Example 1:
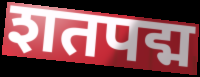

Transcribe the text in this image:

शतपद्म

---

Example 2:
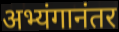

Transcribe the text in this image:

अभ्यंगानंतर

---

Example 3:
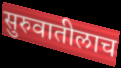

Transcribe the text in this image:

सुरुवातीलाच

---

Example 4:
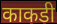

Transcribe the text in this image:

काकडी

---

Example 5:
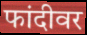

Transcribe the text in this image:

फांदीवर